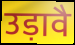
उड़ावै